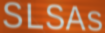
SLSAs